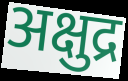
अक्षुद्र